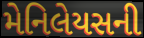
મેનિલેયસની